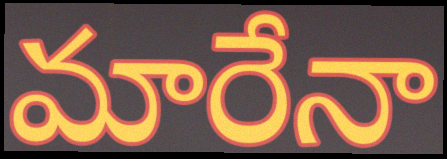
మారేనా